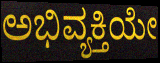
ಅಭಿವ್ಯಕ್ತಿಯೇ